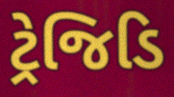
ટ્રેજિડિ